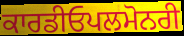
ਕਾਰਡੀਓਪਲਮੋਨਰੀ